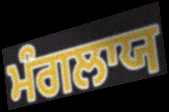
ਮੰਗਲਾਯ